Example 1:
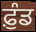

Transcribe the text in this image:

ਫ਼ੁੰਡ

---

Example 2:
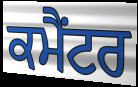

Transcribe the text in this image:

ਕਮੈਂਟਰ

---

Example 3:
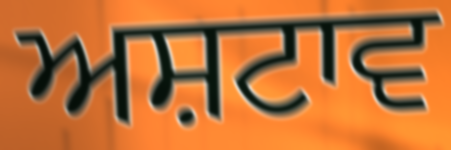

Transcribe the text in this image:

ਅਸ਼ਟਾਵ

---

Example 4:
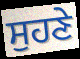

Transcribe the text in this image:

ਸੁਹਣੇ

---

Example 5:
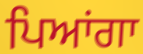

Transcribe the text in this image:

ਪਿਆਂਗਾ